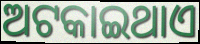
ଅଟକାଇଥାଏ